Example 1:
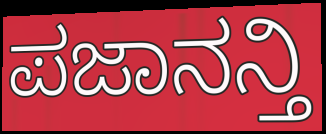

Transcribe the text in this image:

ಪಜಾನನ್ತಿ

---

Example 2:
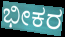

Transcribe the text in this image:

ಭೀಕರ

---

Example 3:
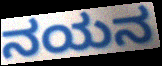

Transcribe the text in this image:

ನಯನ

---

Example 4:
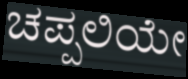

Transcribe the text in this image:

ಚಪ್ಪಲಿಯೇ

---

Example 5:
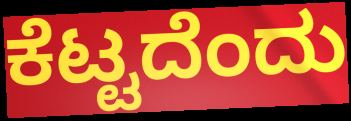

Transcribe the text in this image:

ಕೆಟ್ಟದೆಂದು